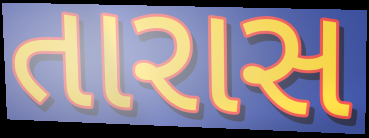
તારાસ